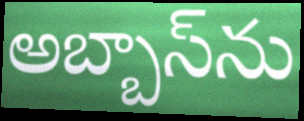
అబ్బాస్‌ను